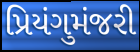
પ્રિયંગુમંજરી